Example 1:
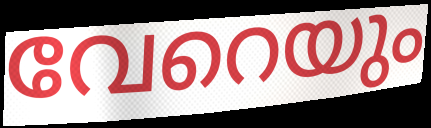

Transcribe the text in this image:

വേറെയും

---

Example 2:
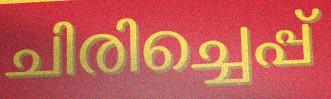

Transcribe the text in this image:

ചിരിച്ചെപ്പ്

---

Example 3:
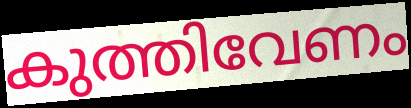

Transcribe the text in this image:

കുത്തിവേണം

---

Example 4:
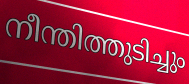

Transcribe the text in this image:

നീന്തിത്തുടിച്ചും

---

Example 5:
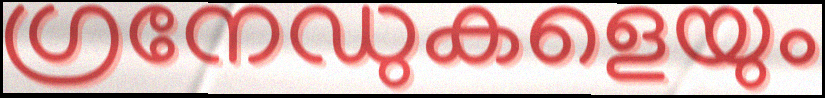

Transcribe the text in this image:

ഗ്രനേഡുകളെയും